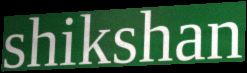
shikshan